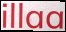
illaa